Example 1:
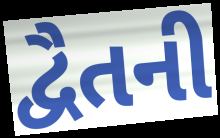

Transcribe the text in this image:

દ્વૈતની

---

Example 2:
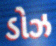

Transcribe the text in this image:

ડોઝ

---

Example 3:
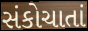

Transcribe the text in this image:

સંકોચાતાં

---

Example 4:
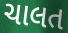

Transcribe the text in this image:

ચાલત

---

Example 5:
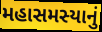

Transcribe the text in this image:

મહાસમસ્યાનું